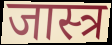
जास्त्र